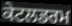
ਕੇਟਲਡਰਮ